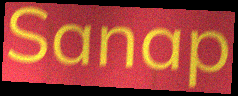
Sanap